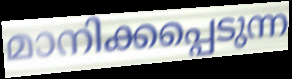
മാനിക്കപ്പെടുന്ന